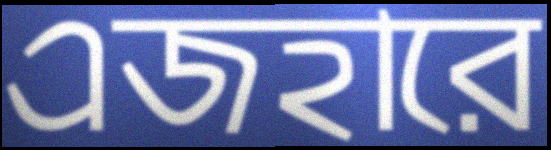
এজহারে